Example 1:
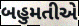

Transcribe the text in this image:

બહુમતીએ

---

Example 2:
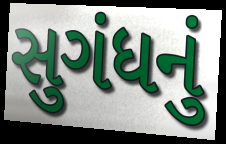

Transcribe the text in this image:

સુગંધનું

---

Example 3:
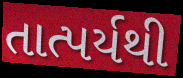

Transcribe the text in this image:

તાત્પર્યથી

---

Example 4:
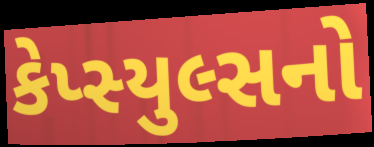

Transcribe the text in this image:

કેપ્સ્યુલ્સનો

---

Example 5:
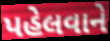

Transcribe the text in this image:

પહેલવાને